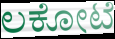
ಲಕೋಟೆ